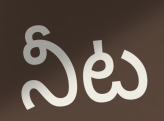
నీట